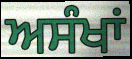
ਅਸੰਖਾਂ